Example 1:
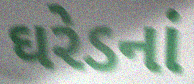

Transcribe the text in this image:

ઘરેડનાં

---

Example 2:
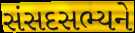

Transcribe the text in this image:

સંસદસભ્યને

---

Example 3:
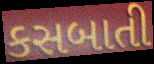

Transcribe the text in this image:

કસબાતી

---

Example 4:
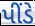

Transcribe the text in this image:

પીંડે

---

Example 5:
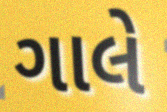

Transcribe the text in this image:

ગાલે